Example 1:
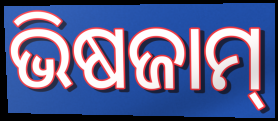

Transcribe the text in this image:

ଭିଷଜାମ୍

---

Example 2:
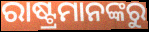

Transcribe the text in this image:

ରାଷ୍ଟ୍ରମାନଙ୍କରୁ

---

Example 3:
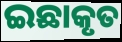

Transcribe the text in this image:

ଇଛାକୃତ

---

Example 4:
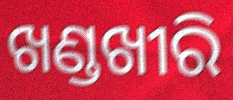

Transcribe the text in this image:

ଖଣ୍ଡଖୀରି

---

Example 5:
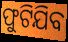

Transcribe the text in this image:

ଫୁଟିଯିବ